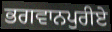
ਭਗਵਾਨਪੁਰੀਏ